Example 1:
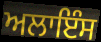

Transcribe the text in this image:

ਅਲਾਇੰਸ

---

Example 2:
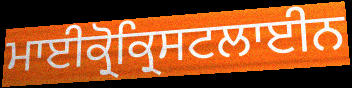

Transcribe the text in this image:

ਮਾਈਕ੍ਰੋਕ੍ਰਿਸਟਲਾਈਨ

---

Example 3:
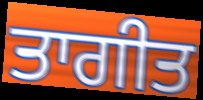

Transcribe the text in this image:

ਤਾਗੀਤ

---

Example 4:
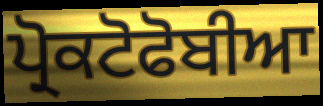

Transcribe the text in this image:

ਪ੍ਰੋਕਟੋਫੋਬੀਆ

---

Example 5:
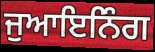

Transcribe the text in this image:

ਜੁਆਇਨਿੰਗ